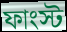
ফাংস্ট